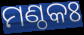
ମଣ୍ଠକଃ